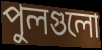
পুলগুলো